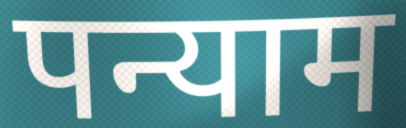
पन्याम